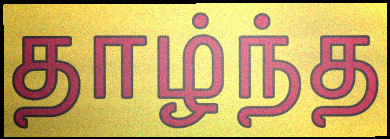
தாழ்ந்த